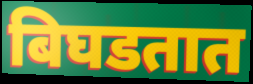
बिघडतात